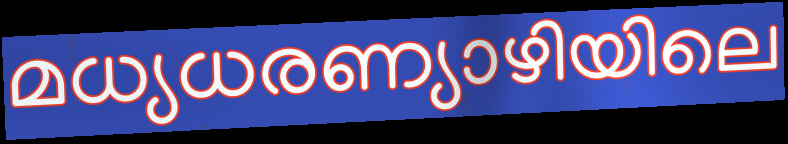
മധ്യധരണ്യാഴിയിലെ